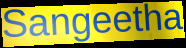
Sangeetha